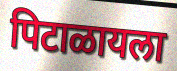
पिटाळायला